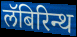
लॅबिरिन्थ